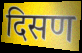
दिसण